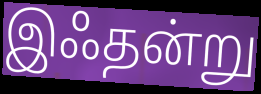
இஃதன்று